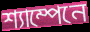
শ্যাম্পেনে